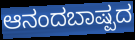
ಆನಂದಬಾಷ್ಪದ